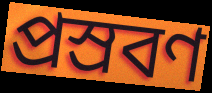
প্রস্রবণ